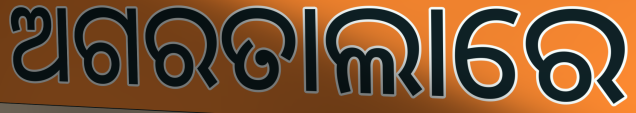
ଅଗରତାଲାରେ